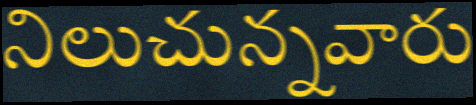
నిలుచున్నవారు